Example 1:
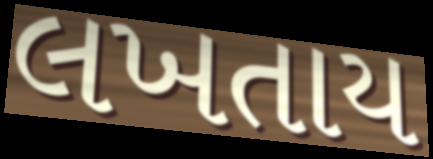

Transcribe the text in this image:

લખતાય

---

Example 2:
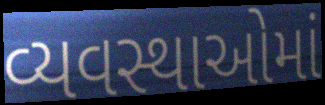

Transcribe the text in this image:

વ્યવસ્થાઓમાં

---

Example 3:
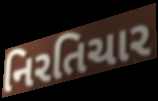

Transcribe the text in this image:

નિરતિચાર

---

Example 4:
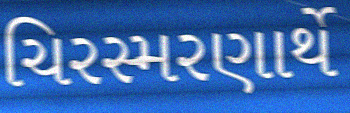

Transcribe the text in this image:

ચિરસ્મરણાર્થે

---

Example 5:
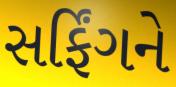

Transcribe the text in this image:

સર્ફિંગને